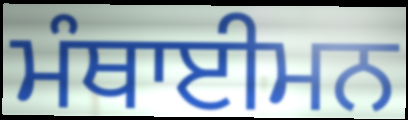
ਮੰਥਾਈਮਨ